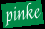
pinke